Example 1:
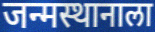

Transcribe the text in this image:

जन्मस्थानाला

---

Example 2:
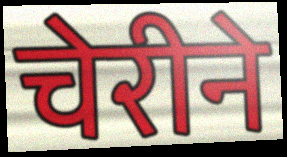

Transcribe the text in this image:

चेरीने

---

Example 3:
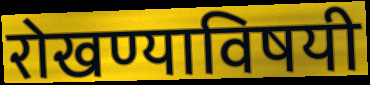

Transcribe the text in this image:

रोखण्याविषयी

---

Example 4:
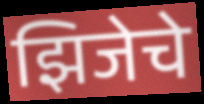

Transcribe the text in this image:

झिजेचे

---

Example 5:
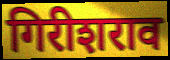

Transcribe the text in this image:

गिरीशराव